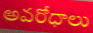
అవరోధాలు